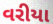
વરીયા